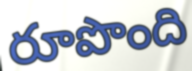
రూపొంది